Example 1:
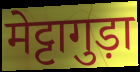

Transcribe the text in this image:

मेट्टागुड़ा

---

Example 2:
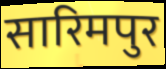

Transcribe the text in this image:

सारिमपुर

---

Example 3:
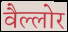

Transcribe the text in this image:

वैल्लोर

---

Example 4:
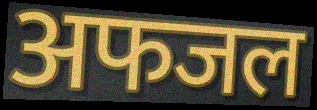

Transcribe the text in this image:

अफजल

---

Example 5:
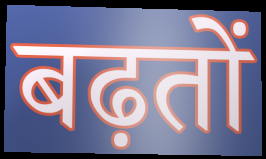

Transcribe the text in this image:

बढ़तों